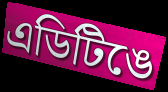
এডিটিঙে